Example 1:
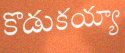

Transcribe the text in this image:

కొడుకయ్యా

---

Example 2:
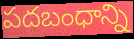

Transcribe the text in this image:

పదబంధాన్ని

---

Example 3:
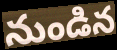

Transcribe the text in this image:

నుండిన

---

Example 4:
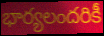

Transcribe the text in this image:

భార్యలందరికీ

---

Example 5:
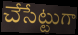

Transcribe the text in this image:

చేసేట్టుగా